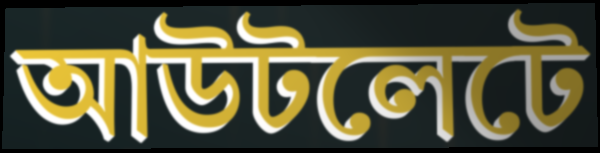
আউটলেটে